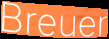
Breuer